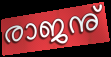
രാജനു്